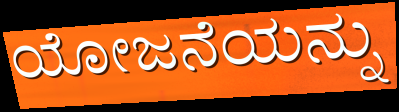
ಯೋಜನೆಯನ್ನು